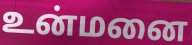
உன்மனை